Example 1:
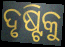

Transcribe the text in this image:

ଦୃଷ୍ଟିକୁ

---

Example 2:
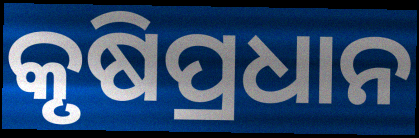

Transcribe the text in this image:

କୃଷିପ୍ରଧାନ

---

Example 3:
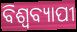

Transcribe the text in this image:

ବିଶ୍ଵବ୍ୟାପୀ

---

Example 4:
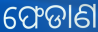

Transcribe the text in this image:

ଫେଡାଣ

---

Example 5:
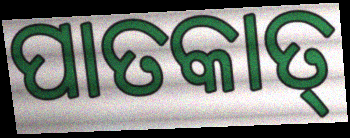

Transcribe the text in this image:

ପାତକାତ୍